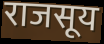
राजसूय